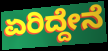
ಏರಿದ್ದೇನೆ